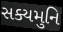
સક્યમુનિ